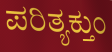
ಪರಿತ್ಯಕ್ತುಂ